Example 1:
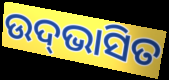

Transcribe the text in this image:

ଉଦ୍‍ଭାସିତ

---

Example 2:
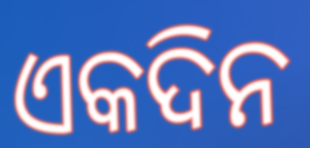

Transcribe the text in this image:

ଏକଦିନ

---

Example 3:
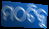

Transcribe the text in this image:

ମଠଟିକୁ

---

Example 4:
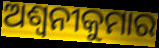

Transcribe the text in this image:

ଅଶ୍ୱନୀକୁମାର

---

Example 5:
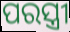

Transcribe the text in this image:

ପରସ୍ତ୍ରୀ